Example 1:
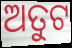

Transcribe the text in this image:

ଅତୁଟ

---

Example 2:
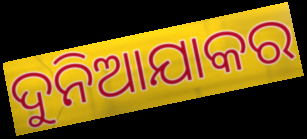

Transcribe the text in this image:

ଦୁନିଆଯାକର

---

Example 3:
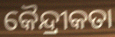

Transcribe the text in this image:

କୈନ୍ଦ୍ରୀକତା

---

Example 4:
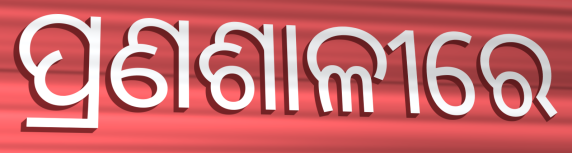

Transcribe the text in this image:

ପ୍ରଣଶାଳୀରେ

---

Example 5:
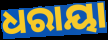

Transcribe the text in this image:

ଧରାୟା